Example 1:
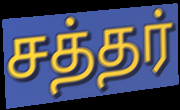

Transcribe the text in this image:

சத்தர்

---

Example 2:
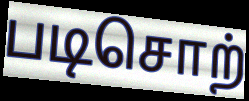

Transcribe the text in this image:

படிசொற்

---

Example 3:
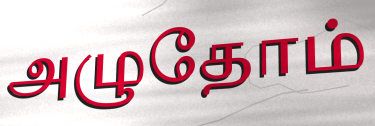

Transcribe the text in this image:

அழுதோம்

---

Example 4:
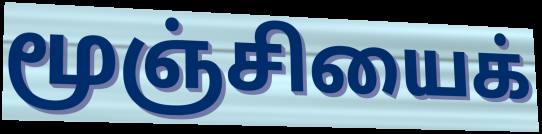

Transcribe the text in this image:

மூஞ்சியைக்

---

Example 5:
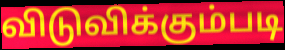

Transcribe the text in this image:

விடுவிக்கும்படி